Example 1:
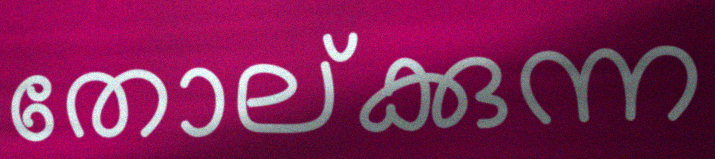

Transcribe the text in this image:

തോല്ക്കുന്ന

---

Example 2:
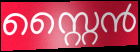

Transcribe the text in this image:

സ്റ്റൈൻ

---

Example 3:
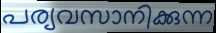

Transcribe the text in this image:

പര്യവസാനിക്കുന്ന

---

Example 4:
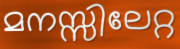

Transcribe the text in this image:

മനസ്സിലേറ്റ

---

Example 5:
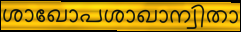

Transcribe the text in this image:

ശാഖോപശാഖാന്വിതാ